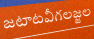
జటాటవీగలజ్జల